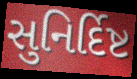
સુનિર્દિષ્ટ